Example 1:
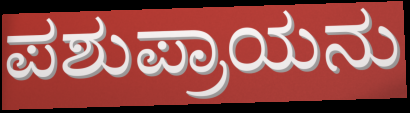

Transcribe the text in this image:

ಪಶುಪ್ರಾಯನು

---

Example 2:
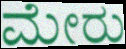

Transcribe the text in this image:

ಮೇರು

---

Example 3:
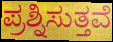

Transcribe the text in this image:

ಪ್ರಶ್ನಿಸುತ್ತವೆ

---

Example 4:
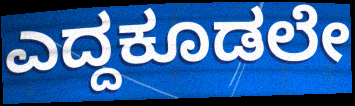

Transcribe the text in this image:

ಎದ್ದಕೂಡಲೇ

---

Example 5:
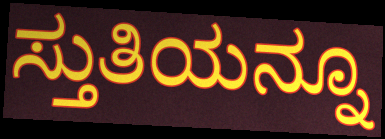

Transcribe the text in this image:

ಸ್ತುತಿಯನ್ನೂ